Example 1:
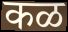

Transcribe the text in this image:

कळ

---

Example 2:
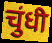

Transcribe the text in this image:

चुंधी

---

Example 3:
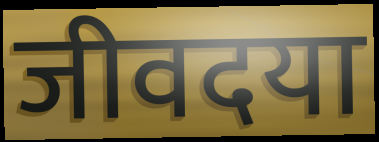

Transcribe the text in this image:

जीवदया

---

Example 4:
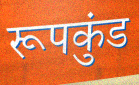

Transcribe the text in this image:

रूपकुंड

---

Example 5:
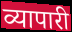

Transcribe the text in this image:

व्यापारी